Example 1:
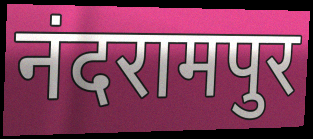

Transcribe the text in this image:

नंदरामपुर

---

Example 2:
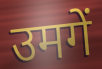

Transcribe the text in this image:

उमगें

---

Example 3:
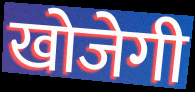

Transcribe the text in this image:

खोजेगी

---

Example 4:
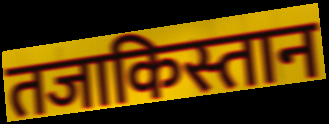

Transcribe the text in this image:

तजाकिस्‍तान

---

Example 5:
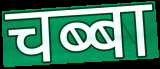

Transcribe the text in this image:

चब्बा